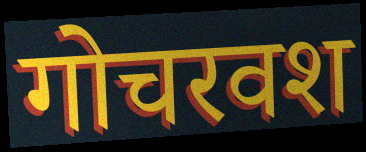
गोचरवश